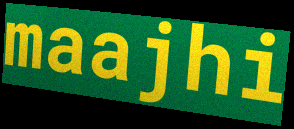
maajhi